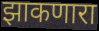
झाकणारा